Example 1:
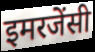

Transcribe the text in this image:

इमरजेंसी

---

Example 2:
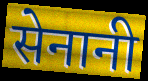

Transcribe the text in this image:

सेनानी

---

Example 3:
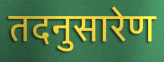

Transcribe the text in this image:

तदनुसारेण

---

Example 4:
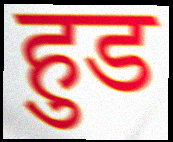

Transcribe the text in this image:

हुड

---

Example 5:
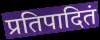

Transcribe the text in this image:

प्रतिपादितं